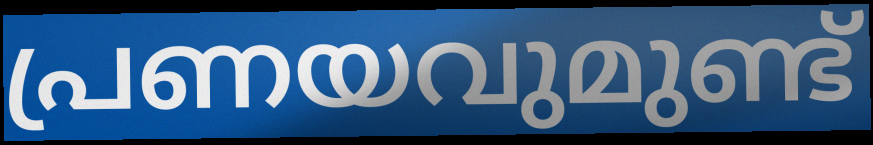
പ്രണയവുമുണ്ട്